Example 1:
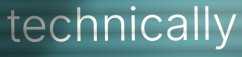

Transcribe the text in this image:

technically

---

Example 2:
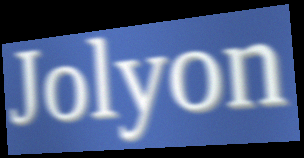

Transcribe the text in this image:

Jolyon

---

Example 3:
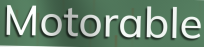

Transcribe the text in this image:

Motorable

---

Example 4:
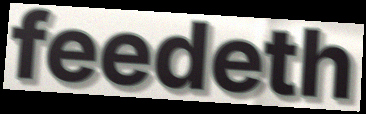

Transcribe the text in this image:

feedeth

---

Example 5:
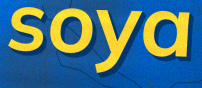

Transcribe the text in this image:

soya